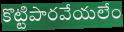
కొట్టిపారవేయలేం